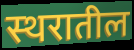
स्थरातील